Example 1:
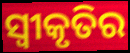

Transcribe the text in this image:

ସ୍ଵୀକୃତିର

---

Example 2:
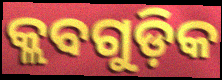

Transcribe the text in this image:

କ୍ଲବଗୁଡ଼ିକ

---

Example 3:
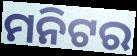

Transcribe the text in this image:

ମନିଟର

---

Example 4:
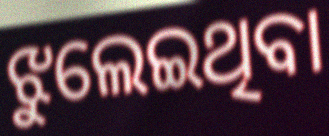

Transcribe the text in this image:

ଝୁଲେଇଥିବା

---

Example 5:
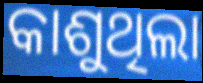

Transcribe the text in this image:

କାଶୁଥିଲା